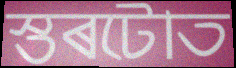
স্তৰটোত